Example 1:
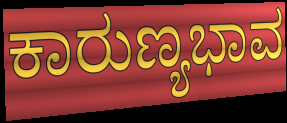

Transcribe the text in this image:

ಕಾರುಣ್ಯಭಾವ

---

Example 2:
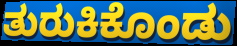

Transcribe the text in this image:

ತುರುಕಿಕೊಂಡು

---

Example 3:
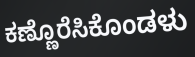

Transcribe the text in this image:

ಕಣ್ಣೊರೆಸಿಕೊಂಡಳು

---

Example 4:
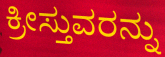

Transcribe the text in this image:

ಕ್ರೀಸ್ತುವರನ್ನು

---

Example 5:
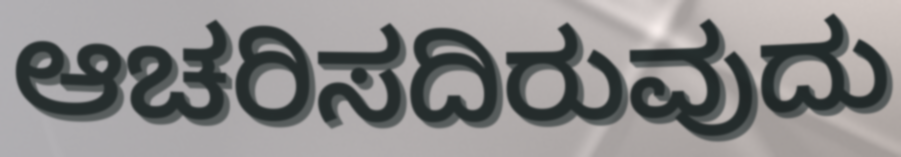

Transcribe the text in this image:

ಆಚರಿಸದಿರುವುದು